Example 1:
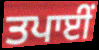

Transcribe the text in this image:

ਤਪਾਈਂ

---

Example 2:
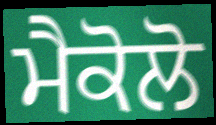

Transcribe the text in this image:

ਮੈਕੋਲੋ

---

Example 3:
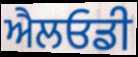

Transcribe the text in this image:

ਐਲਓਡੀ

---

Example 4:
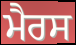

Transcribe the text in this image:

ਮੈਰਸ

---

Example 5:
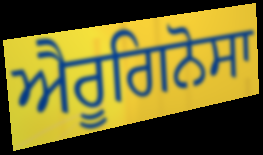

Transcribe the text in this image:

ਐਰੂਗਿਨੋਸਾ